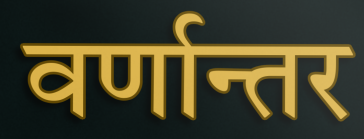
वर्णान्तर